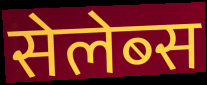
सेलेब्‍स